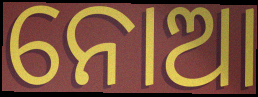
ନୋଆ